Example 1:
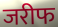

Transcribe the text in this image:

जरीफ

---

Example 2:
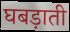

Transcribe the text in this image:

घबड़ाती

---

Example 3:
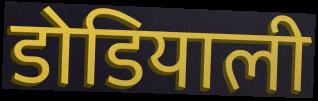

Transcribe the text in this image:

डोडियाली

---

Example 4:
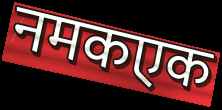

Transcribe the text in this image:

नमकएक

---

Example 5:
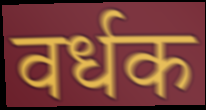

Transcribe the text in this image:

वर्धक